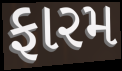
ફારમ